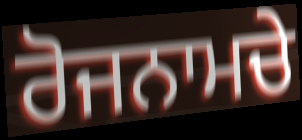
ਰੋਜਨਾਮਚੇ